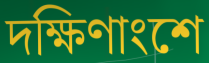
দক্ষিণাংশে